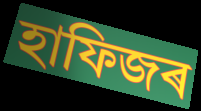
হাফিজৰ